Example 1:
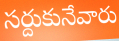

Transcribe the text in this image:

సర్దుకునేవారు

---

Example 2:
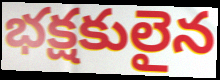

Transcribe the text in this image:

భక్షకులైన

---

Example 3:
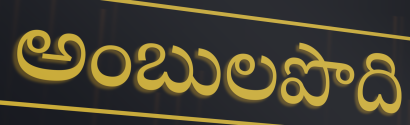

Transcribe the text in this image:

అంబులపొది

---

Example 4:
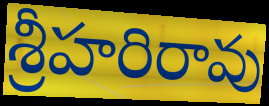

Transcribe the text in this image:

శ్రీహరిరావు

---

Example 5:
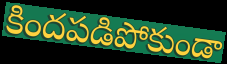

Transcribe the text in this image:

కిందపడిపోకుండా